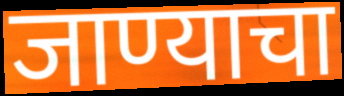
जाण्‍याचा